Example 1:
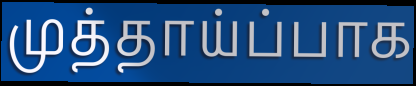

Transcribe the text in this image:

முத்தாய்ப்பாக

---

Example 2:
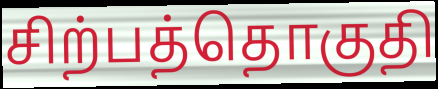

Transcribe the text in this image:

சிற்பத்தொகுதி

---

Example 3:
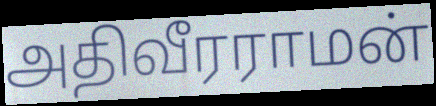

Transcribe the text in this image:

அதிவீரராமன்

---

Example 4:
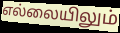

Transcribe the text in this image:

எல்லையிலும்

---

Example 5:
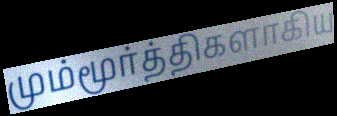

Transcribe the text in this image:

மும்மூர்த்திகளாகிய